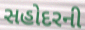
સહોદરની